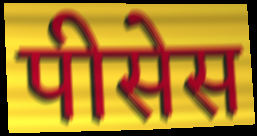
पीसेस